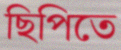
ছিপিতে